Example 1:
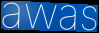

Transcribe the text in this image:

awas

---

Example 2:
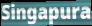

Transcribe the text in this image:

Singapura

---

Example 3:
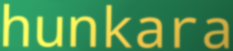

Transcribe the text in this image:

hunkara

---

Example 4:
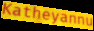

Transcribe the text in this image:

Katheyannu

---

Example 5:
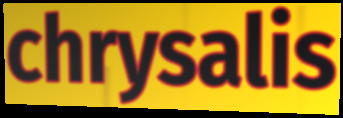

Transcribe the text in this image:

chrysalis